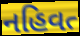
નહિવત્‍